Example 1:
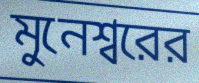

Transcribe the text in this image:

মুনেশ্বরের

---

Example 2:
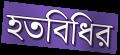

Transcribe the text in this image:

হতবিধির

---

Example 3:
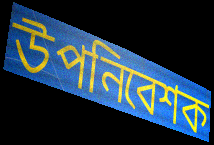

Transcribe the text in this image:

উপনিবেশক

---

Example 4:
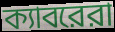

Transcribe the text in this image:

ক্যাবরেরা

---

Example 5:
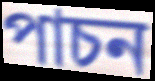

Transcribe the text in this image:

পাচন